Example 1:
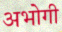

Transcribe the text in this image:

अभोगी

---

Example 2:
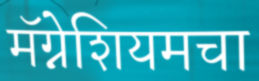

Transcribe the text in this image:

मॅग्नेशियमचा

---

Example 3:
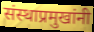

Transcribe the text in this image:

संस्थाप्रमुखांनी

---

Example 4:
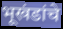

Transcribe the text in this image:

भूखंडांचे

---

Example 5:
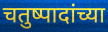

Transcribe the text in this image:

चतुष्पादांच्या